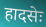
हादसेः